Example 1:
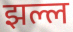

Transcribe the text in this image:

झल्ल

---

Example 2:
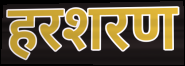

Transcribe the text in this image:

हरशरण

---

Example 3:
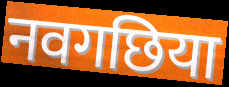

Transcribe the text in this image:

नवगछिया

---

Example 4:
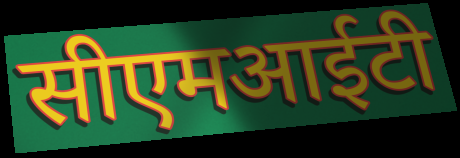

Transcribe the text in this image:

सीएमआईटी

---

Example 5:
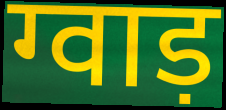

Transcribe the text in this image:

ग्वाड़